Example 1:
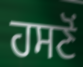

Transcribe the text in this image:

ਹਸਣੋਂ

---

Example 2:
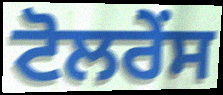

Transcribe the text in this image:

ਟੋਲਰੇਂਸ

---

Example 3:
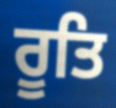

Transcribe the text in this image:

ਰੂਤਿ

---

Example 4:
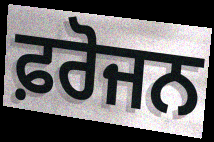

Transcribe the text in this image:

ਫ਼ਰੋਜਨ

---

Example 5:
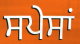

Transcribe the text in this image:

ਸਪੇਸਾਂ